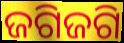
ଜଗିଜଗି